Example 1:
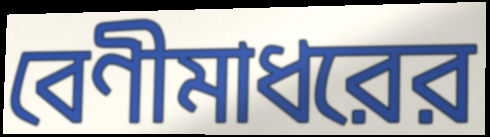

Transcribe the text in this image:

বেণীমাধরের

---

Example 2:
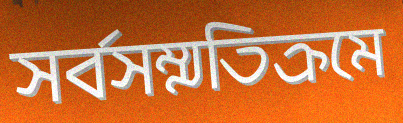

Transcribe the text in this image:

সর্বসম্মতিক্রমে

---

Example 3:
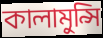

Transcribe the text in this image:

কালামুন্সি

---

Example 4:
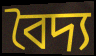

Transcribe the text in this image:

বৈদ্য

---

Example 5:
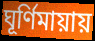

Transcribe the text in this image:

ঘূর্ণিমায়ায়